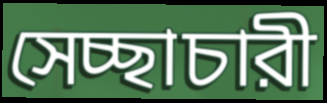
সেচ্ছাচারী